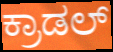
ಕ್ರಾಡಲ್